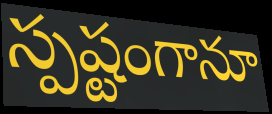
స్పష్టంగానూ